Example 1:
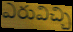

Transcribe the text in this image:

ఎరువిచ్చి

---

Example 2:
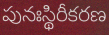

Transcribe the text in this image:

పునఃస్థిరీకరణ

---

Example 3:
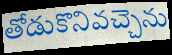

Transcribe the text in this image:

తోడుకొనివచ్చెను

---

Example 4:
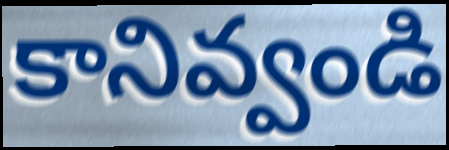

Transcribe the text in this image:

కానివ్వండి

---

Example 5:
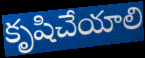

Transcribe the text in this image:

కృషిచేయాలి